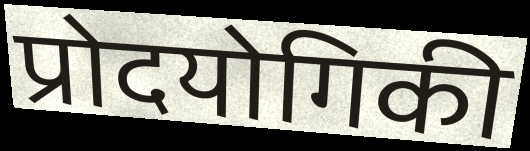
प्रोदयोगिकी